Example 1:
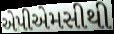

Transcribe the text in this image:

એપીએમસીથી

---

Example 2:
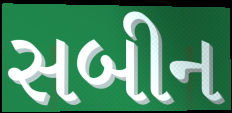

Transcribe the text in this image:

સબીન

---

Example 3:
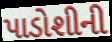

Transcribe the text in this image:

પાડોશીની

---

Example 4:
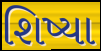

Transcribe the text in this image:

શિષ્યા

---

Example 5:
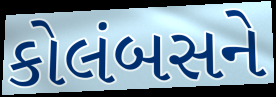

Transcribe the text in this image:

કોલંબસને